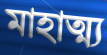
মাহাত্ম্য